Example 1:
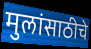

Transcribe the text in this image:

मुलांसाठीचे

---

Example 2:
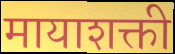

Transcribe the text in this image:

मायाशक्ती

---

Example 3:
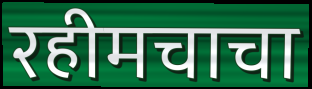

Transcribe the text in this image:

रहीमचाचा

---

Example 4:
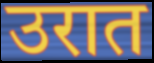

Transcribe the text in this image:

उरात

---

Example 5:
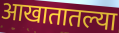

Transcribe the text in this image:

आखातातल्या